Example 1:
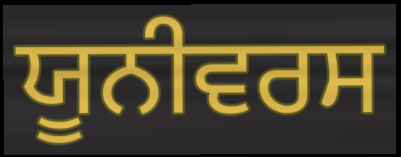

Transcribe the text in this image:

ਯੂਨੀਵਰਸ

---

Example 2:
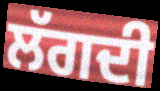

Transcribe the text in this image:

ਲੱਗਦੀ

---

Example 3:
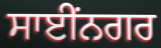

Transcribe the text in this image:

ਸਾਈਂਨਗਰ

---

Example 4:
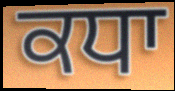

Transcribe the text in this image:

ਕਧਾ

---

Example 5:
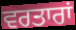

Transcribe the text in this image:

ਵਰਤਾਰਾਂ